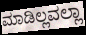
ಮಾಡಿಲ್ಲವಲ್ಲಾ